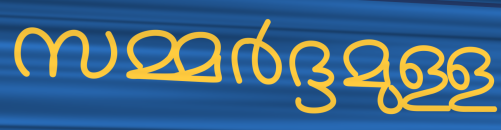
സമ്മർദ്ദമുള്ള